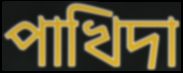
পাখিদা